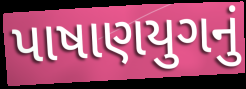
પાષાણયુગનું